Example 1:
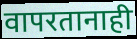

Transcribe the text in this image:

वापरतानाही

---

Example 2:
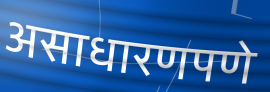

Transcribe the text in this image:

असाधारणपणे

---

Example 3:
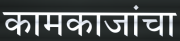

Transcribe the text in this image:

कामकाजांचा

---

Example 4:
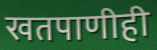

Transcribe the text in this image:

खतपाणीही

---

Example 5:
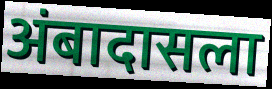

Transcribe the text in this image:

अंबादासला